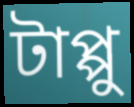
টাপ্পু